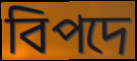
বিপদে